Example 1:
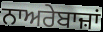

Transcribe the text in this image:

ਨਾਅਰੇਬਾਜ਼ਾਂ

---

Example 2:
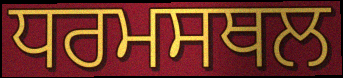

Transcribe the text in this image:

ਧਰਮਸਥਲ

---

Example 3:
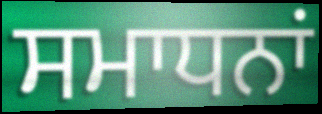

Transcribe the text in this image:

ਸਮਾਧਨਾਂ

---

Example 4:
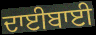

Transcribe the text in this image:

ਦਾਈਬਾਈ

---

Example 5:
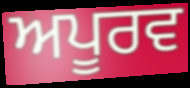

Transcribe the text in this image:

ਅਪੂਰਵ